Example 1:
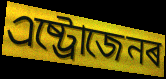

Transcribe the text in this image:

এষ্ট্ৰোজেনৰ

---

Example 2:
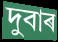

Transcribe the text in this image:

দুবাৰ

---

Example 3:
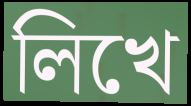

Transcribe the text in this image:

লিখে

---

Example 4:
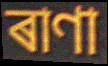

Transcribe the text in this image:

ৰাণা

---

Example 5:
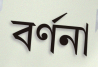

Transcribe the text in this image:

বৰ্ণনা